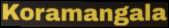
Koramangala